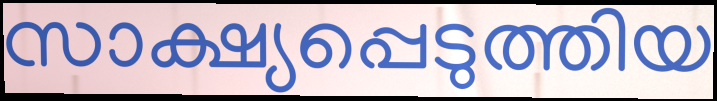
സാക്ഷ്യപ്പെടുത്തിയ